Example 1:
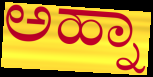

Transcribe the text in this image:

ಅಹ್ನಾ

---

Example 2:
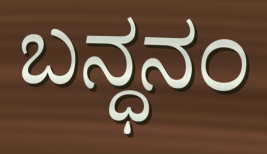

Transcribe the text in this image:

ಬನ್ಧನಂ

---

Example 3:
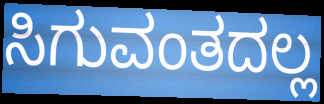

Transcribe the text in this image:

ಸಿಗುವಂತದಲ್ಲ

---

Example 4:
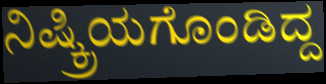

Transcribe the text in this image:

ನಿಷ್ಕ್ರಿಯಗೊಂಡಿದ್ದ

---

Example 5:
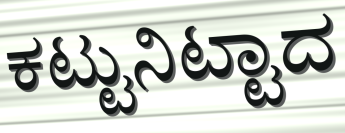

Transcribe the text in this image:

ಕಟ್ಟುನಿಟ್ಟಾದ